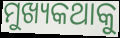
ମୁଖ୍ୟକଥାକୁ